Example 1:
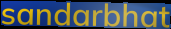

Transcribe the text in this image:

sandarbhat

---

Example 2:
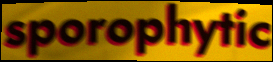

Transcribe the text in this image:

sporophytic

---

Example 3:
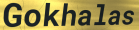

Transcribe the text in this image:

Gokhalas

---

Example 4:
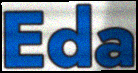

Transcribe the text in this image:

Eda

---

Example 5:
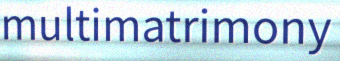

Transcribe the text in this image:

multimatrimony